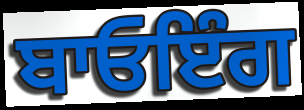
ਬਾਓਇੰਗ